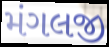
મંગલજી